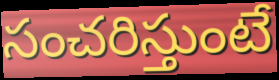
సంచరిస్తుంటే